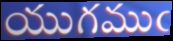
యుగముఁ